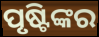
ପୃଷ୍ଟିଙ୍କର